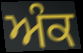
ਅੰਕ